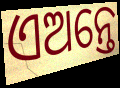
ଏଅନ୍ତେ